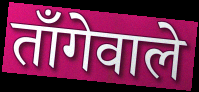
ताँगेवाले